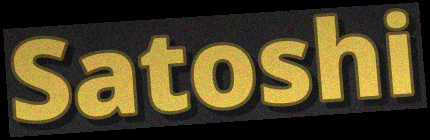
Satoshi